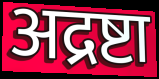
अद्रष्टा